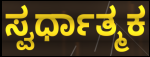
ಸ್ವರ್ಧಾತ್ಮಕ